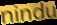
nindu